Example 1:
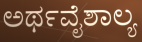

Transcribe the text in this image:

ಅರ್ಥವೈಶಾಲ್ಯ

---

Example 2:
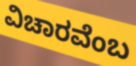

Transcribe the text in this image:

ವಿಚಾರವೆಂಬ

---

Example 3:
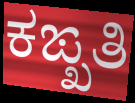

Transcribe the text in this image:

ಕಙ್ಖತಿ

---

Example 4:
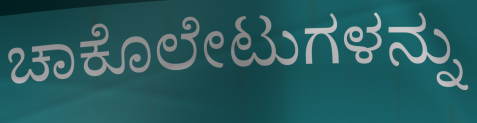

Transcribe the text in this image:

ಚಾಕೊಲೇಟುಗಳನ್ನು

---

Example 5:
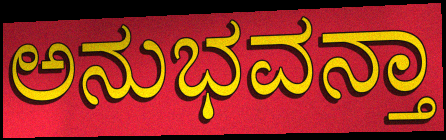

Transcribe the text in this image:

ಅನುಭವನ್ತಾ